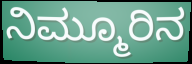
ನಿಮ್ಮೂರಿನ